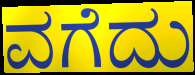
ವಗೆದು